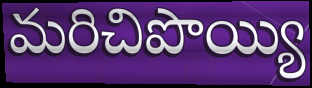
మరిచిపొయ్యి